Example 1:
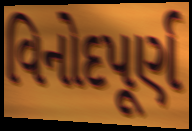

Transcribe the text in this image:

વિનોદપૂર્ણ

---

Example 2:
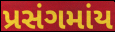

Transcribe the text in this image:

પ્રસંગમાંય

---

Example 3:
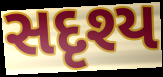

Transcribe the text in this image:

સદૃશ્ય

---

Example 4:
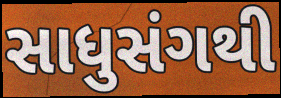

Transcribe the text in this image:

સાધુસંગથી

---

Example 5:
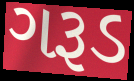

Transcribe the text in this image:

ગરૂડ